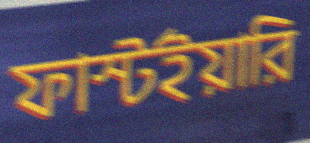
ফার্স্টইয়ারি